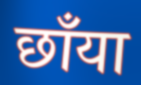
छाँया